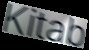
Kitab